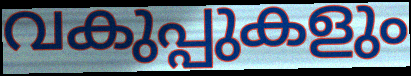
വകുപ്പുകളും